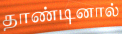
தாண்டினால்